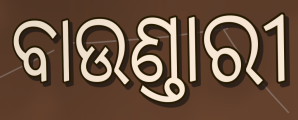
ବାଉଣ୍ଡାରୀ